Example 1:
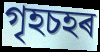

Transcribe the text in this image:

গৃহচহৰ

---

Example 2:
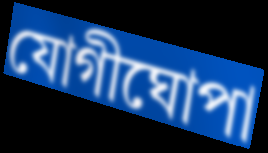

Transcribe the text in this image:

যোগীঘোপা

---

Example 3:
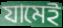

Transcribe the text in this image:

যামেই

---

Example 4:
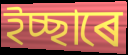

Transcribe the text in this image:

ইচ্ছাৰে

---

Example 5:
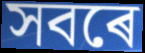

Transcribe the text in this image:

সবৰে